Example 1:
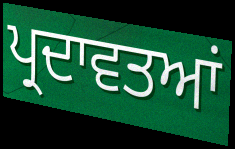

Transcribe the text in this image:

ਪ੍ਰਦਾਵਤਆਂ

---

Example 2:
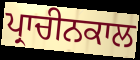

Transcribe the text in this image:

ਪ੍ਰਾਚੀਨਕਾਲ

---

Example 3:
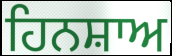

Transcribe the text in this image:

ਹਿਨਸ਼ਾਅ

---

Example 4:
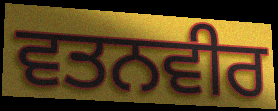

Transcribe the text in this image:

ਵਤਨਵੀਰ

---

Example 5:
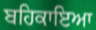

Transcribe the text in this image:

ਬਹਿਕਾਇਆ